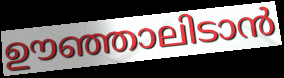
ഊഞ്ഞാലിടാൻ